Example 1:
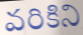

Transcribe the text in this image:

వరికిని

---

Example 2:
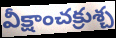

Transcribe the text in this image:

వీక్షాంచక్రుశ్చ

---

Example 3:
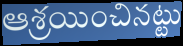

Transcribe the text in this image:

ఆశ్రయించినట్టు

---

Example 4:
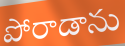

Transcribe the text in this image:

పోరాడాను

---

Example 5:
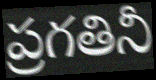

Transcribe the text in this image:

ప్రగతినీ